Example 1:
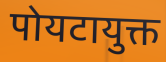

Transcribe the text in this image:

पोयटायुक्त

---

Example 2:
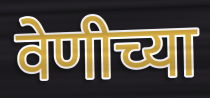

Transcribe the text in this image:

वेणीच्या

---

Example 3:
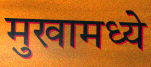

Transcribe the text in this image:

मुखामध्ये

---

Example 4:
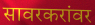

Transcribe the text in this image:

सावरकरांवर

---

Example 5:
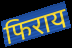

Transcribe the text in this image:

फिराय